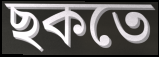
ছকতে